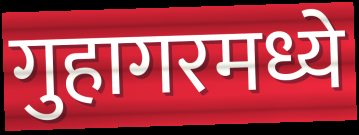
गुहागरमध्ये